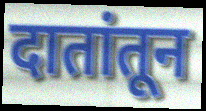
दातांतून